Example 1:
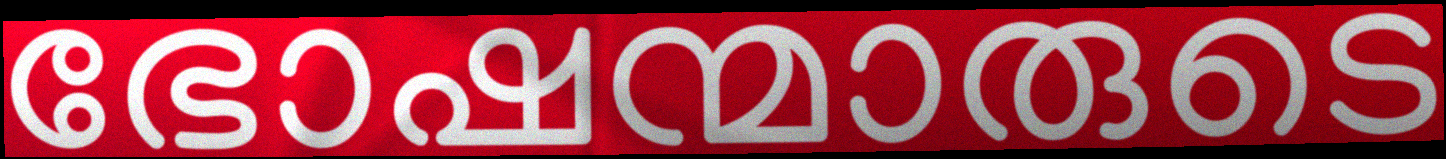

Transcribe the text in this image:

ഭോഷന്മാരുടെ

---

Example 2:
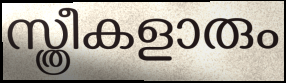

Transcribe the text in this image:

സ്ത്രീകളാരും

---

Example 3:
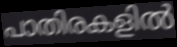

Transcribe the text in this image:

പാതിരകളിൽ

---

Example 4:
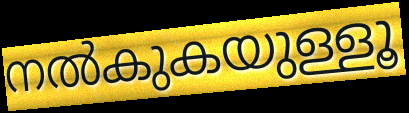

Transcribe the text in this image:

നൽകുകയുള്ളൂ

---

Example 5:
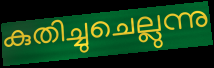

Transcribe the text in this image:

കുതിച്ചുചെല്ലുന്നു